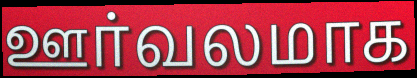
ஊர்வலமாக